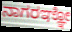
ನಾಗರಞ್ಞೋ